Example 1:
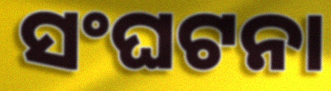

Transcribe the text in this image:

ସଂଘଟନା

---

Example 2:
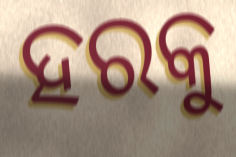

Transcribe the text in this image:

ହରକୁ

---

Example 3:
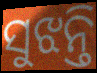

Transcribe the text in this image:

ସୁଝନ୍ତି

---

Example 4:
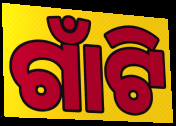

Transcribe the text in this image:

ଗାଁଟି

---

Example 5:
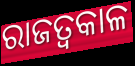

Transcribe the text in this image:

ରାଜତ୍ଵକାଳ